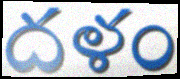
దళం